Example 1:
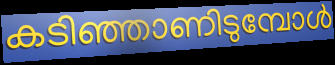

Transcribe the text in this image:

കടിഞ്ഞാണിടുമ്പോൾ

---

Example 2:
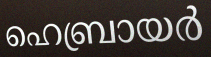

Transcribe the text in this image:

ഹെബ്രായർ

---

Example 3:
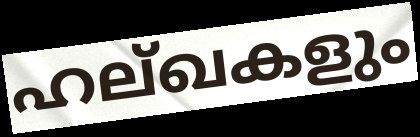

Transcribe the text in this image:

ഹല്ഖകളും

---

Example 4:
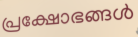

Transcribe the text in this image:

പ്രക്ഷോഭങ്ങൾ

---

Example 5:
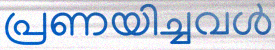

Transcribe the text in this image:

പ്രണയിച്ചവൾ